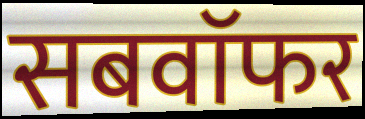
सबवॉफर